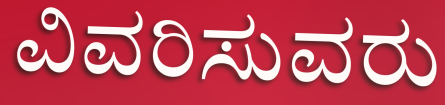
ವಿವರಿಸುವರು